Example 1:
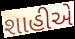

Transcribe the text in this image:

શાહીએ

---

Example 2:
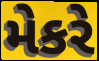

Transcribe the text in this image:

મેકરે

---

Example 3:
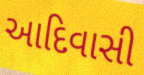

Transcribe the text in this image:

આદિવાસી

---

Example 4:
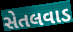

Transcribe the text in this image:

સેતલવાડ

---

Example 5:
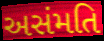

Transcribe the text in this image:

અસંમતિ